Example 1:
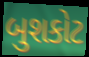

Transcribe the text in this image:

બુશકોટ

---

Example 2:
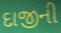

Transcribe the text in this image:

દાજીની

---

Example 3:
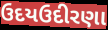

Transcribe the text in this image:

ઉદયઉદીરણા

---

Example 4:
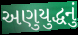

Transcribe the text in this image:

અણુયુદ્ધનું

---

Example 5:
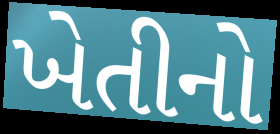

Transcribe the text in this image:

ખેતીનો